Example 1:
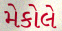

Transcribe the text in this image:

મેકોલે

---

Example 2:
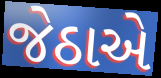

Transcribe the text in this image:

જેઠાએ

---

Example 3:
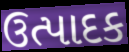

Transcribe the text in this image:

ઉત્પાદક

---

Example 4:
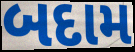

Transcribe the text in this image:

બદામ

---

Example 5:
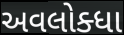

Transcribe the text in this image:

અવલોક્ધા